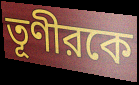
তূণীরকে